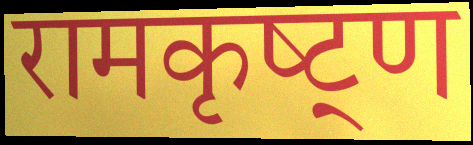
रामकृष्ट्ण